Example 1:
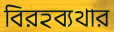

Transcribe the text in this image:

বিরহব্যথার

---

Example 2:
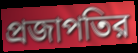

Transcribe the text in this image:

প্রজাপতির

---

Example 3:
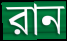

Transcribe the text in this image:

রান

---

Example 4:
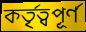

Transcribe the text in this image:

কর্তৃত্বপূর্ণ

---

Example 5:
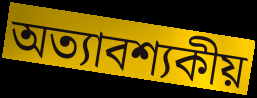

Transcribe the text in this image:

অত্যাবশ্যকীয়